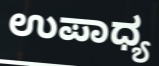
ಉಪಾಧ್ಯ